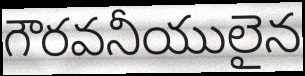
గౌరవనీయులైన